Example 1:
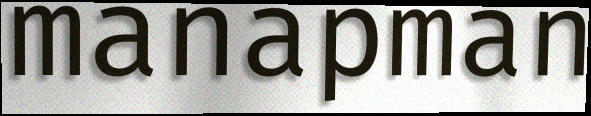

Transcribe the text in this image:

manapman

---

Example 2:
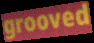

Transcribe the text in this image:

grooved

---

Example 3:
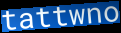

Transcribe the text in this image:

tattwno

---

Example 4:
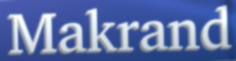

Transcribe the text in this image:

Makrand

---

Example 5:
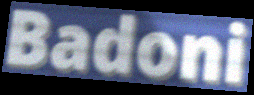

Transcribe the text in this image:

Badoni